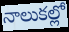
నాలుకల్లో